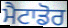
ਮੈਟਾਡੋਰ